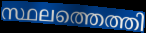
സ്ഥലത്തെത്തി